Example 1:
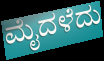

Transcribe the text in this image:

ಮೈದಳೆದು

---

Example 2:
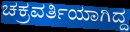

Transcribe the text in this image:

ಚಕ್ರವರ್ತಿಯಾಗಿದ್ದ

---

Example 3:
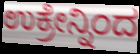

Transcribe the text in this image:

ಉಕ್ರೇನ್ನಿಂದ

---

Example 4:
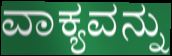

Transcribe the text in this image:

ವಾಕ್ಯವನ್ನು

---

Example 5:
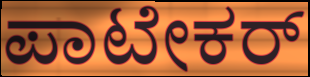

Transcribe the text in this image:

ಪಾಟೇಕರ್